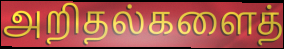
அறிதல்களைத்